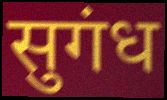
सुगंध